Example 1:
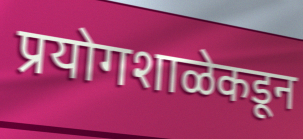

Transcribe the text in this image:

प्रयोगशाळेकडून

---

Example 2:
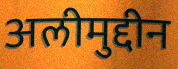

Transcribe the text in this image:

अलीमुद्दीन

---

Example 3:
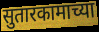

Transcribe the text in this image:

सुतारकामाच्या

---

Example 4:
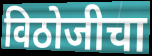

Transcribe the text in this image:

विठोजीचा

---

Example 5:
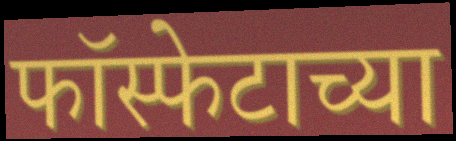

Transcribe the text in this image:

फॉस्फेटाच्या